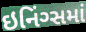
ઇનિંગ્સમાં